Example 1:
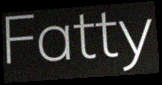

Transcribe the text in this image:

Fatty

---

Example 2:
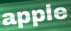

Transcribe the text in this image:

apple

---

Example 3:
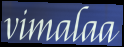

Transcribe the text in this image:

vimalaa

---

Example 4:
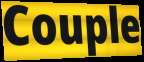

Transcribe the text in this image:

Couple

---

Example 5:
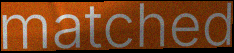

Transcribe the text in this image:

matched